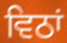
ਵਿਠਾਂ